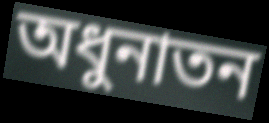
অধুনাতন